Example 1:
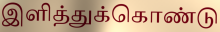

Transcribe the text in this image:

இளித்துக்கொண்டு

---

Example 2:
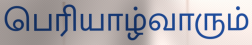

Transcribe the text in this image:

பெரியாழ்வாரும்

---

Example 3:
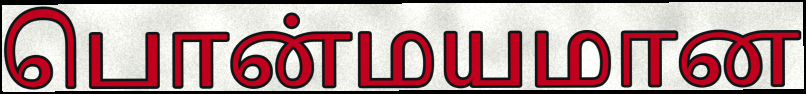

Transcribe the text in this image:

பொன்மயமான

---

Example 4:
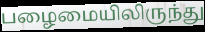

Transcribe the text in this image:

பழைமையிலிருந்து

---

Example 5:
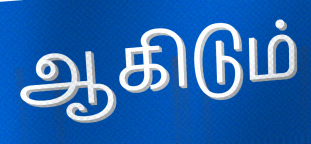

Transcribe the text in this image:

ஆகிடும்